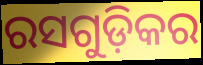
ରସଗୁଡ଼ିକର